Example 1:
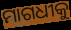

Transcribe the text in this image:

ମାଗଧୀକୁ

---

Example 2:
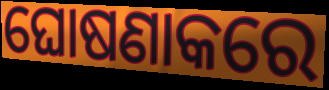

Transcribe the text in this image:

ଘୋଷଣାକରେ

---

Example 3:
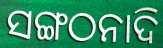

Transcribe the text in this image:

ସଙ୍ଗଠନାଦି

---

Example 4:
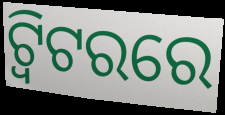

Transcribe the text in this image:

ଟ୍ବିଟରରେ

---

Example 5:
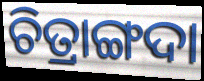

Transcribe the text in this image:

ଚିତ୍ରାଙ୍ଗଦା